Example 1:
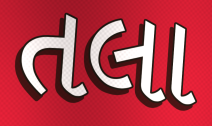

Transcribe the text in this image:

તલા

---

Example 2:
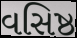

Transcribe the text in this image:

વસિષ્ઠ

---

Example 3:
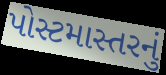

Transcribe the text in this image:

પોસ્ટમાસ્તરનું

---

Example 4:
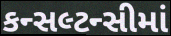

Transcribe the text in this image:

કન્સલ્ટન્સીમાં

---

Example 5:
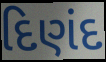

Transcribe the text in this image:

દિણંદ